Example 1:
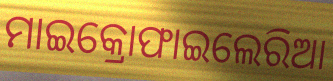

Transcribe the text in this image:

ମାଇକ୍ରୋଫାଇଲେରିଆ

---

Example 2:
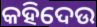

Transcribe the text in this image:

କହିଦେଉ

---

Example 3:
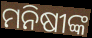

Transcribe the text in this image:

ମନିଷୀଙ୍କ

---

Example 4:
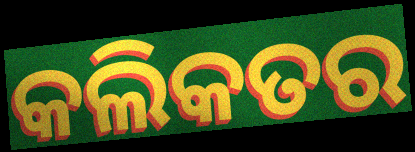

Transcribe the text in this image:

କଲିକତର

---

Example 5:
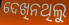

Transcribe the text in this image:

ଦେଖିନଥିଲୁ